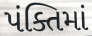
પંક્તિમાં